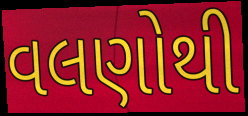
વલણોથી